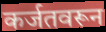
कर्जतवरून